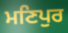
ਮਣਿਪੁਰ